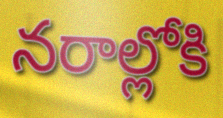
నరాల్లోకి